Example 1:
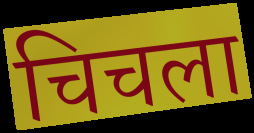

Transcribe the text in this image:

चिचला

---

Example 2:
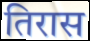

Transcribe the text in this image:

तिरास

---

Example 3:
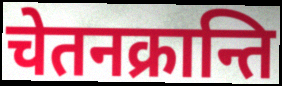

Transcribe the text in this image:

चेतनक्रान्ति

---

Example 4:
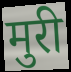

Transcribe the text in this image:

मुरी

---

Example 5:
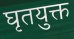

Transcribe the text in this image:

घृतयुक्त